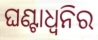
ଘଣ୍ଟାଧ୍ୱନିର